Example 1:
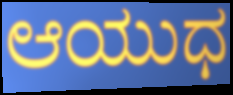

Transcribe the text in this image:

ಆಯುಧ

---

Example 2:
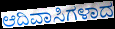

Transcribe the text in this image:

ಆದಿವಾಸಿಗಳಾದ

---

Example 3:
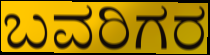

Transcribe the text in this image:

ಬವರಿಗರ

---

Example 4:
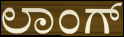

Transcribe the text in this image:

ಲಾಂಗ್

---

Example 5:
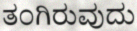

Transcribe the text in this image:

ತಂಗಿರುವುದು